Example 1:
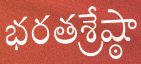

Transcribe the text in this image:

భరతశ్రేష్ఠా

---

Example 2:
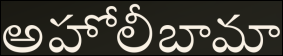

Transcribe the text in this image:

అహోలీబామా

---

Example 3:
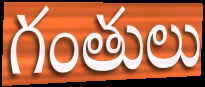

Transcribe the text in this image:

గంతులు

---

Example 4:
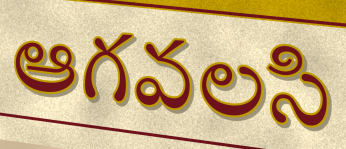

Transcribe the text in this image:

ఆగవలసి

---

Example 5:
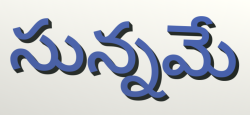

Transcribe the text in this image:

సున్నమే